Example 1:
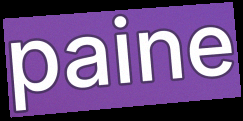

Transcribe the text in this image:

paine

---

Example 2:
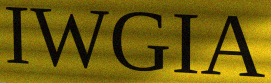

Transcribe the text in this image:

IWGIA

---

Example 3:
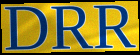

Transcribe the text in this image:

DRR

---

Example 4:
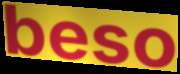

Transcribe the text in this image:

beso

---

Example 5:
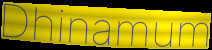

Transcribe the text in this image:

Dhinamum